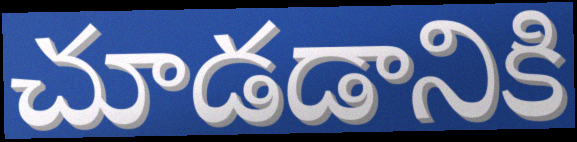
చూడడానికి